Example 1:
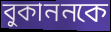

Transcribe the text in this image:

বুকাননকে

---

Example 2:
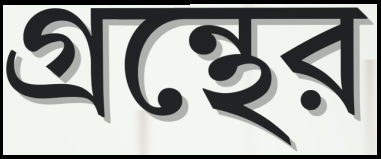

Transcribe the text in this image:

গ্রন্থের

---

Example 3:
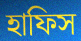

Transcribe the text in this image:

হাফিস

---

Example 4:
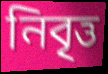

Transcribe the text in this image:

নিবৃত্ত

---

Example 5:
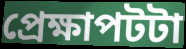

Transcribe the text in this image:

প্রেক্ষাপটটা